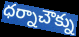
ధర్నాచౌక్ను